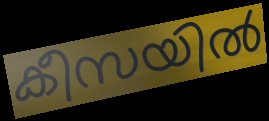
കീസയിൽ